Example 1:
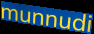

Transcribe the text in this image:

munnudi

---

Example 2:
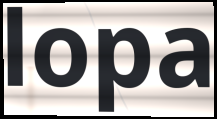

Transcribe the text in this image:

lopa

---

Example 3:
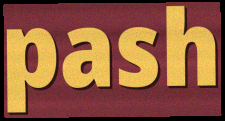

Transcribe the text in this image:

pash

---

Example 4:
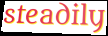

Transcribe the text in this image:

steadily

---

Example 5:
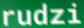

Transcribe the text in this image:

rudzi